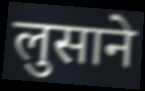
लुसाने